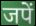
जपें